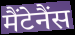
मैंटेनैंस